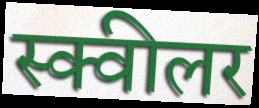
स्क्वीलर